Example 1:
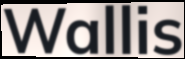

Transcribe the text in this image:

Wallis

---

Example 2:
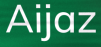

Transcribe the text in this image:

Aijaz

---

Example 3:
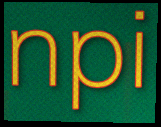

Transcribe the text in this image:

npi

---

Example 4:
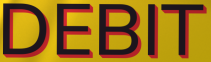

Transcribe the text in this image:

DEBIT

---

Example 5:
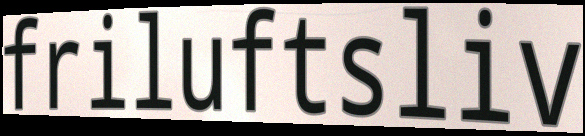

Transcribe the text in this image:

friluftsliv